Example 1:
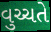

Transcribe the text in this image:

વુચ્ચતે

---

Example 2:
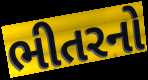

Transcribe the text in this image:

ભીતરનો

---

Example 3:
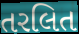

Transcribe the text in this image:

તરલિત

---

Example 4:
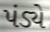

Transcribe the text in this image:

પંડ્યે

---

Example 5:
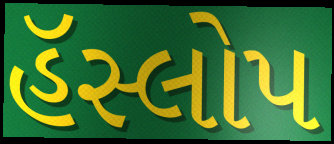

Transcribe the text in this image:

હૅસ્લોપ